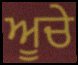
ਅੂਚੇ